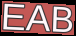
EAB